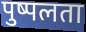
पुष्पलता